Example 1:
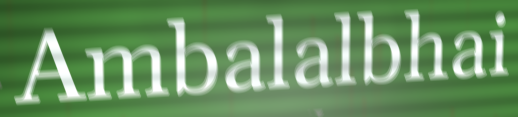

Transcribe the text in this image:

Ambalalbhai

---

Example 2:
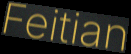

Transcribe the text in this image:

Feitian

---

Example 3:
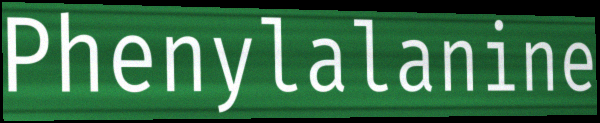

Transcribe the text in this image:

Phenylalanine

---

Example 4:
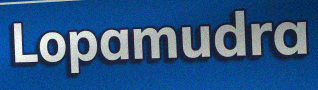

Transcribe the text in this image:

Lopamudra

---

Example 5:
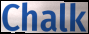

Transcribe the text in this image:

Chalk